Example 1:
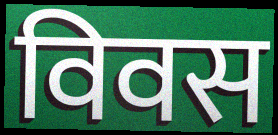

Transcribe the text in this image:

विवस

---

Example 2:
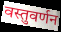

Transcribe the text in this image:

वस्तुवर्णन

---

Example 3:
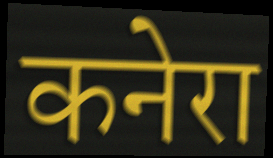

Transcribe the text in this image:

कनेरा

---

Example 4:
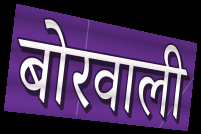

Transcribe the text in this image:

बोरवाली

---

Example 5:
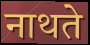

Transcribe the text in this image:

नाथते